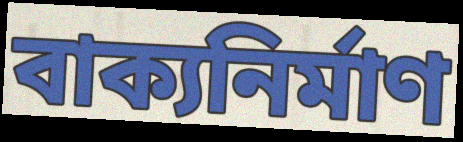
বাক্যনির্মাণ